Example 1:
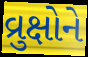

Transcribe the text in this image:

વ્રુક્ષોને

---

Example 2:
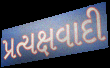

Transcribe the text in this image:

પ્રત્યક્ષવાદી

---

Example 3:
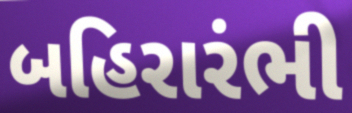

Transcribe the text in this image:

બહિરારંભી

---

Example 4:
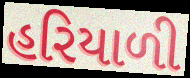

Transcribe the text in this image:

હરિયાળી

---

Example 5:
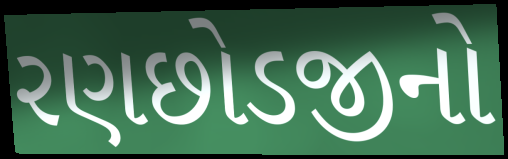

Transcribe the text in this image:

રણછોડજીનો